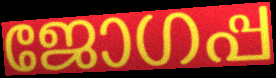
ജോഗപ്പ